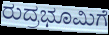
ರುದ್ರಭೂಮಿಗೆ